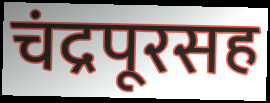
चंद्रपूरसह